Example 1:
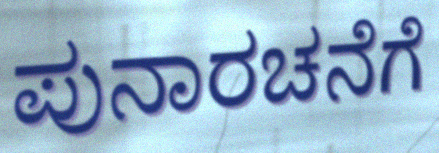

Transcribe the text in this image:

ಪುನಾರಚನೆಗೆ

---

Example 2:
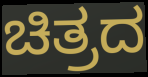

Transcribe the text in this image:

ಚಿತ್ರದ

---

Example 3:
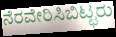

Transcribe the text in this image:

ನೆರವೇರಿಸಿಬಿಟ್ಟರು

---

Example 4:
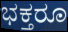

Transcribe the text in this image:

ಭಕ್ತರೂ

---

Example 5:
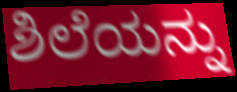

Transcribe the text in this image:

ಶಿಲೆಯನ್ನು